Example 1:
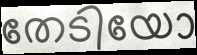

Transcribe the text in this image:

തേടിയോ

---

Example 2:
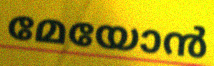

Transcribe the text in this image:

മേയോൻ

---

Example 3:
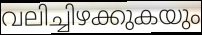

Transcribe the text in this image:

വലിച്ചിഴക്കുകയും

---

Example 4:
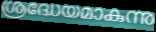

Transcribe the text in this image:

ശ്രദ്ധേയമാകുന്നു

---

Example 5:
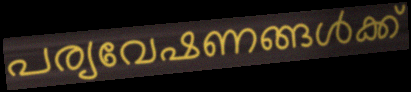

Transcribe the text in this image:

പര്യവേഷണങ്ങൾക്ക്